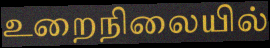
உறைநிலையில்